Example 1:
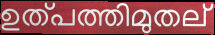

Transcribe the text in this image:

ഉത്പത്തിമുതല്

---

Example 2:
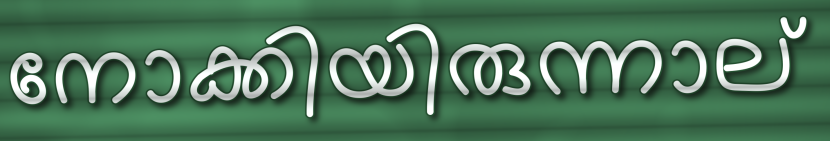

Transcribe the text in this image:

നോക്കിയിരുന്നാല്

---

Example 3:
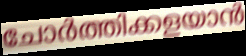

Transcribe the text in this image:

ചോർത്തിക്കളയാൻ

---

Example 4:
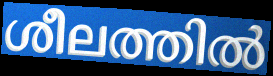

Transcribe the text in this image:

ശീലത്തിൽ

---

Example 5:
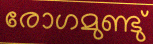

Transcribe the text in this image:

രോഗമുണ്ടു്